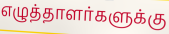
எழுத்தாளர்களுக்கு